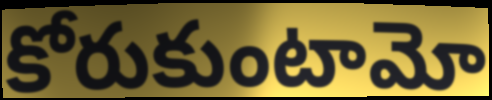
కోరుకుంటామో